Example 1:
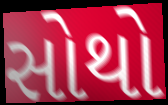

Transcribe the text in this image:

સોથો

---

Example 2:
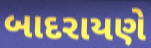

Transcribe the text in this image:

બાદરાયણે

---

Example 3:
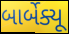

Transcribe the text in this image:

બાર્બેક્યૂ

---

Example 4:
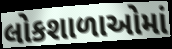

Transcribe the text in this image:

લોકશાળાઓમાં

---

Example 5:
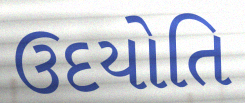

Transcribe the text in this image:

ઉદયોતિ